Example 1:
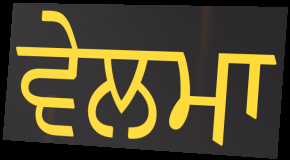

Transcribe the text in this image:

ਵੇਲਮਾ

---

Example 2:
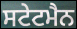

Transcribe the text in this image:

ਸਟੇਟਮੈਨ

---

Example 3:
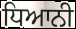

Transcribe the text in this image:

ਧਿਆਨੀ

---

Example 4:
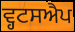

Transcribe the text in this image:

ਵ੍ਹਟਸਐਪ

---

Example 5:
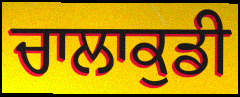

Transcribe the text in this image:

ਚਾਲਾਕੁਡੀ